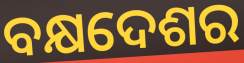
ବକ୍ଷଦେଶର